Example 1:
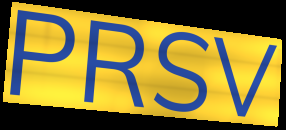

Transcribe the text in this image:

PRSV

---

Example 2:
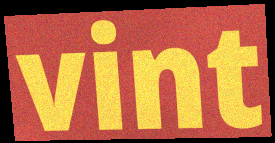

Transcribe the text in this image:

vint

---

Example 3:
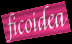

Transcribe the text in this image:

ficoidea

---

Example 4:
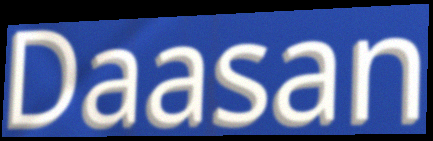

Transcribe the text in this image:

Daasan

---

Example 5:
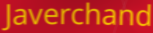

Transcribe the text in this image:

Javerchand